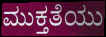
ಮುಕ್ತತೆಯು